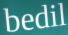
bedil